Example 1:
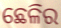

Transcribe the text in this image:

ଛେଳିର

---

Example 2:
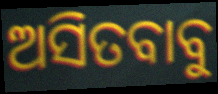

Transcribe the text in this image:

ଅସିତବାବୁ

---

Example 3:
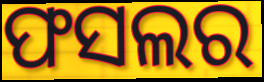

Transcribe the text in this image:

ଫସଲର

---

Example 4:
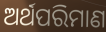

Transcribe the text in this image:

ଅର୍ଥପରିମାଣ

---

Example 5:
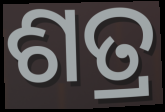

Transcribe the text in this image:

ଶତ୍ର